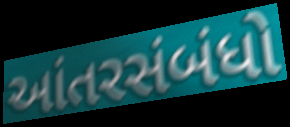
આંતરસંબંધો